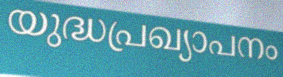
യുദ്ധപ്രഖ്യാപനം